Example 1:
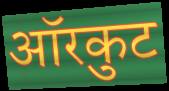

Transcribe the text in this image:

ऑरकुट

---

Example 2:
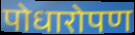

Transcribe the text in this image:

पोधारोपण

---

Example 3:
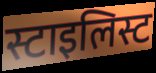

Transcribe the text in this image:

स्टाइलिस्ट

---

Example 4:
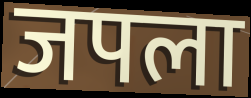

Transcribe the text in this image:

जपला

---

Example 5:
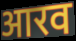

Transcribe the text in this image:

आरव